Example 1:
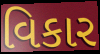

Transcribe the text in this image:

વિકાર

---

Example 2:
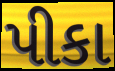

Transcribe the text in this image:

પીકા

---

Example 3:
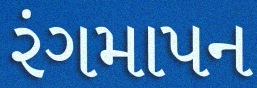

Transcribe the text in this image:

રંગમાપન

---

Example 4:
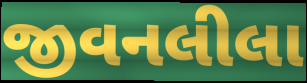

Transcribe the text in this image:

જીવનલીલા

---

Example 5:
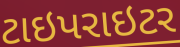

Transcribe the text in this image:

ટાઇપરાઇટર